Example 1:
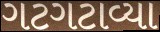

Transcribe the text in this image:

ગટગટાવ્યા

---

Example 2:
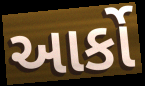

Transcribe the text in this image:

આર્કો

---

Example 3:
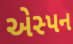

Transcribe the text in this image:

એસ્પન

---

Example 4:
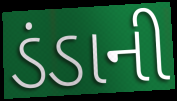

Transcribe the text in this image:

ડંડાની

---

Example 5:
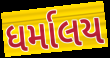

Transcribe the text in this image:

ધર્માલય